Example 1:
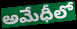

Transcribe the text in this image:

అమేధీలో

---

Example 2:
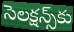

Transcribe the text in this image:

సెలక్షన్స్‌కు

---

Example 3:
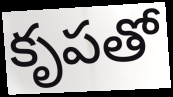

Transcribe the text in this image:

కృపతో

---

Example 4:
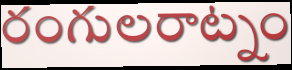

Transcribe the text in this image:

రంగులరాట్నం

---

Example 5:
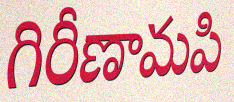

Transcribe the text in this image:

గిరీణామపి